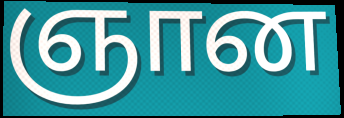
ஞான